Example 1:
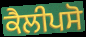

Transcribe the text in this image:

ਕੈਲੀਪਸੋ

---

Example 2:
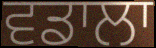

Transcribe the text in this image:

ਵਡਾਲਾ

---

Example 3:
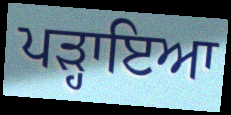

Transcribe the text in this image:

ਪੜ੍ਹਾਇਆ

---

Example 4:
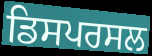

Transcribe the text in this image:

ਡਿਸਪਰਸਲ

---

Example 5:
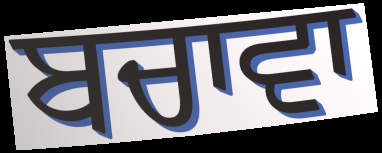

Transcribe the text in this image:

ਬਚਾਵਾ